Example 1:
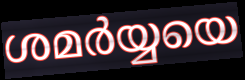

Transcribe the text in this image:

ശമർയ്യയെ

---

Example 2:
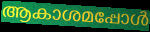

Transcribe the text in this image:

ആകാശമപ്പോൾ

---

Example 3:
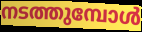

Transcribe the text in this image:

നടത്തുമ്പോൾ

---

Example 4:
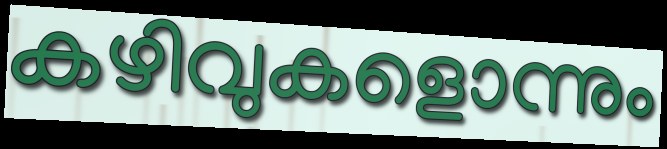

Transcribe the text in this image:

കഴിവുകളൊന്നും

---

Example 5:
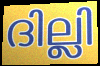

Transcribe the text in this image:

ദില്ലി